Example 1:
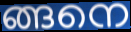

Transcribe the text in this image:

ങ്ങനെ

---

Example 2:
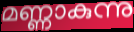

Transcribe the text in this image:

മണ്ണാകുന്നു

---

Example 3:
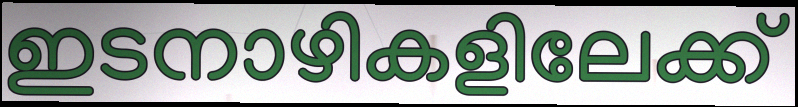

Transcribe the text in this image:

ഇടനാഴികളിലേക്ക്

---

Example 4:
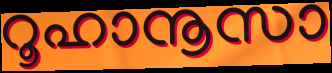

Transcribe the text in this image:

റൂഹാനൂസാ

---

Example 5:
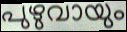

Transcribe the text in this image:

പുഴുവായും